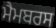
ਮੈਮਬਰਸ